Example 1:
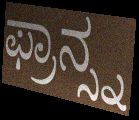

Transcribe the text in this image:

ಫ್ರಾನ್ಸ್ನ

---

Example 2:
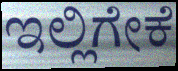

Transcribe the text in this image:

ಇಲ್ಲಿಗೇಕೆ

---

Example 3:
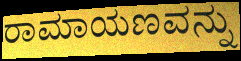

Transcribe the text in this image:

ರಾಮಾಯಣವನ್ನು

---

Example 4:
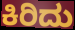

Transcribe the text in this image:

ಕಿರಿದು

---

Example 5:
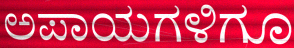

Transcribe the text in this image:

ಅಪಾಯಗಳಿಗೂ